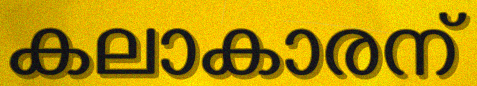
കലാകാരന്